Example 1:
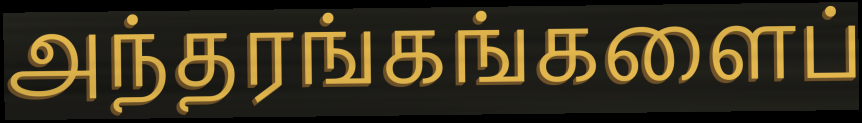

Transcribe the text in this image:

அந்தரங்கங்களைப்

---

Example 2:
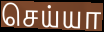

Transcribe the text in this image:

செய்யா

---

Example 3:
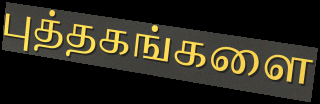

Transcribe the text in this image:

புத்தகங்களை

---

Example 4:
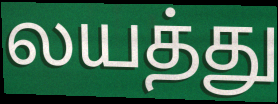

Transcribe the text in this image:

லயத்து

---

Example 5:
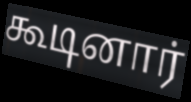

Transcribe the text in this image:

கூடினார்